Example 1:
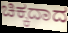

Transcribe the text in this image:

ಚಿಕ್ಕದಾದ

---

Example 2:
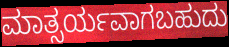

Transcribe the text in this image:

ಮಾತ್ಸರ್ಯವಾಗಬಹುದು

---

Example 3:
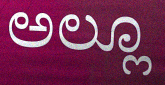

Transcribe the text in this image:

ಅಲ್ಲೂ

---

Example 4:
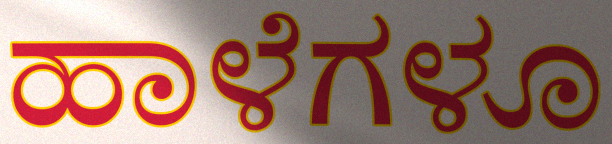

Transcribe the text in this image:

ಹಾಳೆಗಳೂ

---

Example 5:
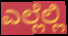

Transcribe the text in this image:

ಎಲ್ಲೆಲ್ಲಿ